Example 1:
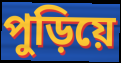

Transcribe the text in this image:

পুড়িয়ে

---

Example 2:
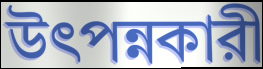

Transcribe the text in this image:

উৎপন্নকারী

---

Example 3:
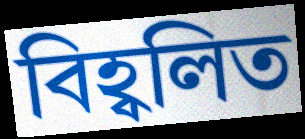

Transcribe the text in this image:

বিহ্বলিত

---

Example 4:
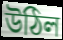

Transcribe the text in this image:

উঠিল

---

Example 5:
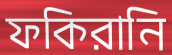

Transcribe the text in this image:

ফকিরানি